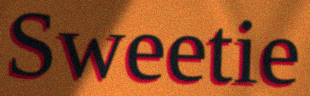
Sweetie